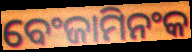
ବେଂଜାମିନଂକ